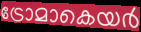
ട്രോമാകെയർ